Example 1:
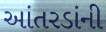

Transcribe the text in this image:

આંતરડાંની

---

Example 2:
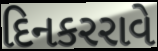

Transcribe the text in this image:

દિનકરરાવે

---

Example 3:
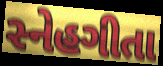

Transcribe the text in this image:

સ્નેહગીતા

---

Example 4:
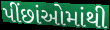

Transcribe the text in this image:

પીંછાંઓમાંથી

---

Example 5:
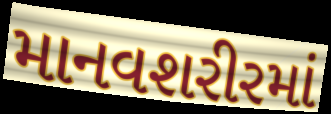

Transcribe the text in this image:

માનવશરીરમાં